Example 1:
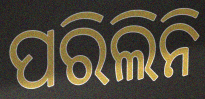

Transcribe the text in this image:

ପରିଲିନି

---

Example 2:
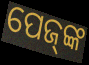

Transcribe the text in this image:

ପେଜ୍‌ଙ୍କ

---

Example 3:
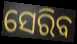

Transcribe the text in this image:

ସେରିବ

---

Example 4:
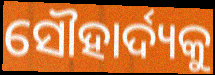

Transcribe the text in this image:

ସୌହାର୍ଦ୍ୟକୁ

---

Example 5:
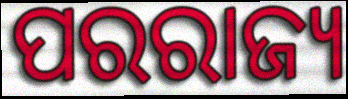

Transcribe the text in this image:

ପରରାଜ୍ୟ